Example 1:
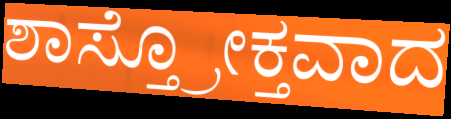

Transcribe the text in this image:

ಶಾಸ್ತ್ರೋಕ್ತವಾದ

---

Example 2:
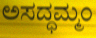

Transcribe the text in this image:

ಅಸದ್ಧಮ್ಮಂ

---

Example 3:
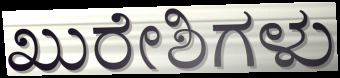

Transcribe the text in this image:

ಖುರೇಶಿಗಳು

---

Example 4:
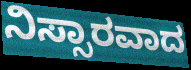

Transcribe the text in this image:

ನಿಸ್ಸಾರವಾದ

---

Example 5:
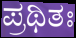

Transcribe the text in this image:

ಪ್ರಥಿತಃ